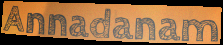
Annadanam